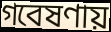
গবেষণায়